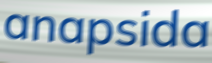
anapsida